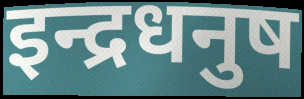
इन्द्रधनुष